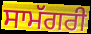
ਸਾਮੱਗਰੀ